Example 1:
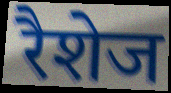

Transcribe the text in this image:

रैशेज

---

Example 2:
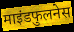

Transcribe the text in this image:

माइंडफुलनेस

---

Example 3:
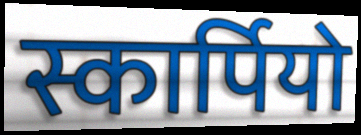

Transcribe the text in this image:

स्कार्पियो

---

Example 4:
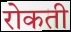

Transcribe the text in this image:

रोकती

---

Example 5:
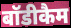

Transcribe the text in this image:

बॉडीकैम